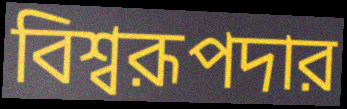
বিশ্বরূপদার